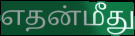
எதன்மீது